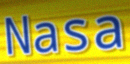
Nasa